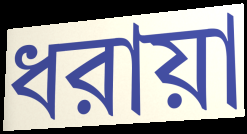
ধরায়া